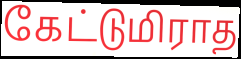
கேட்டுமிராத